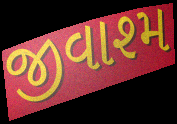
જીવાશ્મ